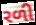
રળી